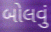
બોલવું